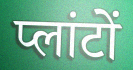
प्लांटों